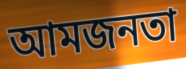
আমজনতা